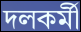
দলকর্মী